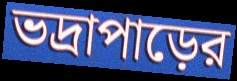
ভদ্রাপাড়ের